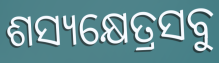
ଶସ୍ୟକ୍ଷେତ୍ରସବୁ